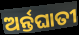
ଅର୍ନ୍ତଘାତୀ